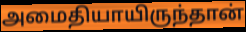
அமைதியாயிருந்தான்